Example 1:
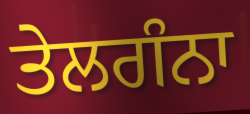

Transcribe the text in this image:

ਤੇਲਗੰਨਾ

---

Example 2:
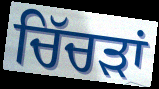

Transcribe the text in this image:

ਚਿੱਚੜਾਂ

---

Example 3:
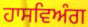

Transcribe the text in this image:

ਹਾਸਵਿਅੰਗ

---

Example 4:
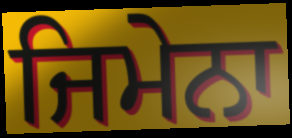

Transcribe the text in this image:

ਜਿਮੇਨਾ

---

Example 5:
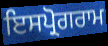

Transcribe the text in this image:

ਇਸਪ੍ਰੋਗਰਾਮ